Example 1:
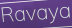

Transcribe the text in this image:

Ravaya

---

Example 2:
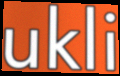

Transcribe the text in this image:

ukli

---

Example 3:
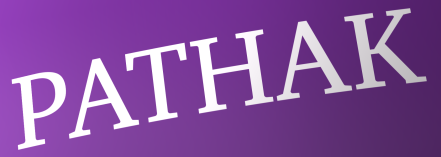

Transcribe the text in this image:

PATHAK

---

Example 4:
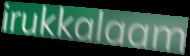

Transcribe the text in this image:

irukkalaam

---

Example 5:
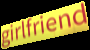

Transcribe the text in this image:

girlfriend